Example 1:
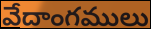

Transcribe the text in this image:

వేదాంగములు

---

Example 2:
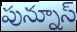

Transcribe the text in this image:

పున్నూస్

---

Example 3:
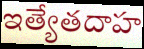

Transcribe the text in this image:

ఇత్యేతదాహ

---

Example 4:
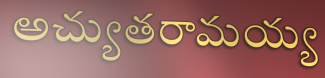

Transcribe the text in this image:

అచ్యుతరామయ్య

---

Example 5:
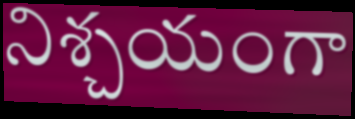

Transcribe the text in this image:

నిశ్చయంగా